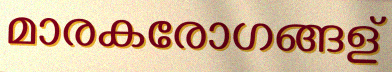
മാരകരോഗങ്ങള്